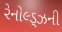
રેનોલ્ડ્ઝની